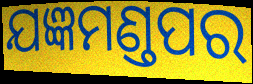
ଯଜ୍ଞମଣ୍ଡପର